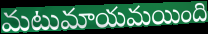
మటుమాయమయింది